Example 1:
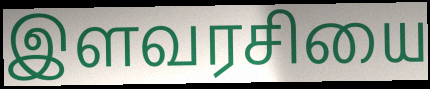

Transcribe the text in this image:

இளவரசியை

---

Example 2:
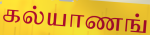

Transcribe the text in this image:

கல்யாணங்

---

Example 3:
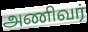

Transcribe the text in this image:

அணிவர்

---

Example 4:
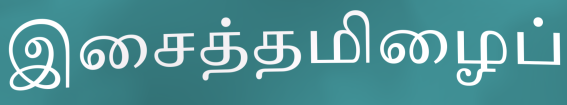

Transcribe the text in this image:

இசைத்தமிழைப்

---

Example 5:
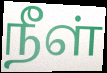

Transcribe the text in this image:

நீள்